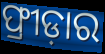
ଫ୍ରୀଡ଼ାର